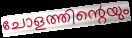
ചോളത്തിന്റെയും